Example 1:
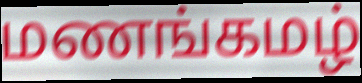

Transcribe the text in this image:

மணங்கமழ்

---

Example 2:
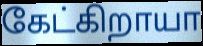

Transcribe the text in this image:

கேட்கிறாயா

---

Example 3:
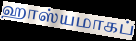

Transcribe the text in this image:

ஹாஸ்யமாகப்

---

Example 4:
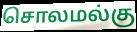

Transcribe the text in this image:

சொலமல்கு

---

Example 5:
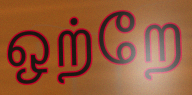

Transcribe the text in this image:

ஒற்றே